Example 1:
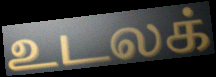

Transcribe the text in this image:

உடலக்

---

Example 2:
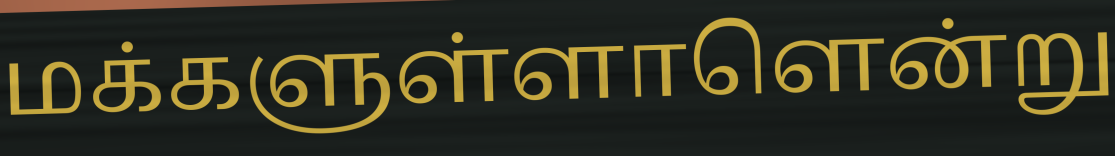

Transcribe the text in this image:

மக்களுள்ளாளென்று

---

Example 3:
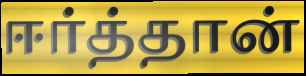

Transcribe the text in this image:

ஈர்த்தான்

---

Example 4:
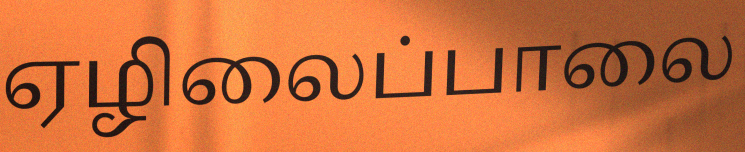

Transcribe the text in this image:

ஏழிலைப்பாலை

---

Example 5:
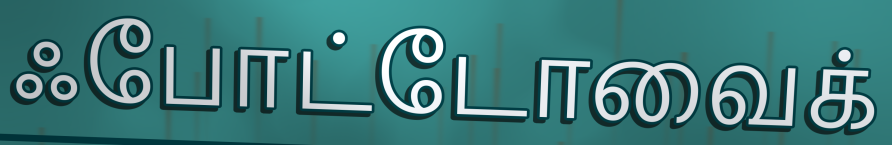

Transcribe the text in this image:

ஃபோட்டோவைக்